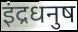
इंद्रधनुष